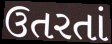
ઉતરતાં